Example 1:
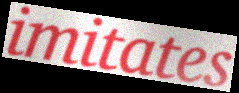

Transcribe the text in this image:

imitates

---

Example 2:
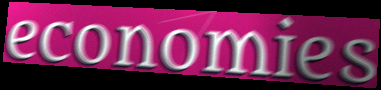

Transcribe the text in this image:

economies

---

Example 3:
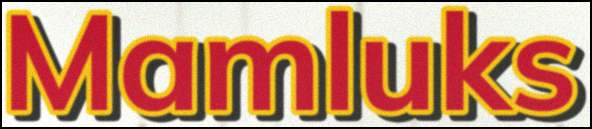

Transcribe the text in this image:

Mamluks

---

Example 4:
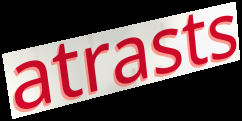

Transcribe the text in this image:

atrasts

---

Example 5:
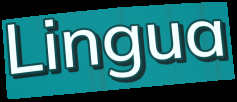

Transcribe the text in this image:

Lingua